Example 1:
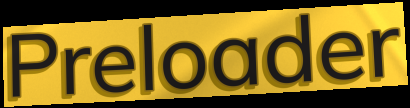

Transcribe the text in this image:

Preloader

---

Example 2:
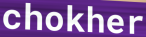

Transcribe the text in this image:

chokher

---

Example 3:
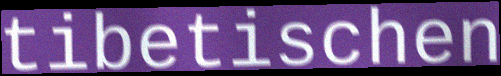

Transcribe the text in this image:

tibetischen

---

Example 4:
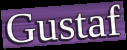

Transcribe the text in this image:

Gustaf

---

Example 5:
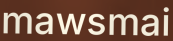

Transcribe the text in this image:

mawsmai